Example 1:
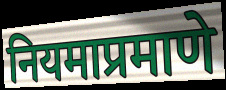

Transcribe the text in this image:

नियमाप्रमाणे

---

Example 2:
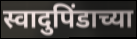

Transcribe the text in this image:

स्वादुपिंडाच्या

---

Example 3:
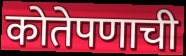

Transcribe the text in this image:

कोतेपणाची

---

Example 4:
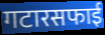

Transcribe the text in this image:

गटारसफाई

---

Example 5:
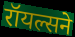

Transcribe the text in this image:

रॉयल्सने